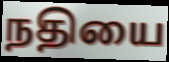
நதியை